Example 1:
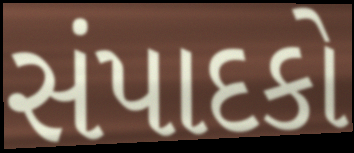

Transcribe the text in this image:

સંપાદકો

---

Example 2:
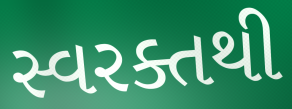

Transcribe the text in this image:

સ્વરક્તથી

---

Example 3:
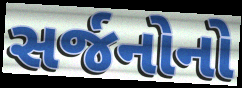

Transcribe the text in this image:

સર્જનોનો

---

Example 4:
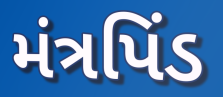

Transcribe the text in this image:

મંત્રપિંડ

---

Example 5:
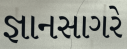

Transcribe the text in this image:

જ્ઞાનસાગરે